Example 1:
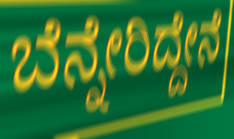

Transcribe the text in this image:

ಬೆನ್ನೇರಿದ್ದೇನೆ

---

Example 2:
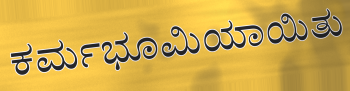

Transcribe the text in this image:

ಕರ್ಮಭೂಮಿಯಾಯಿತು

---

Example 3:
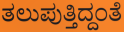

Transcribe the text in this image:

ತಲುಪುತ್ತಿದ್ದಂತೆ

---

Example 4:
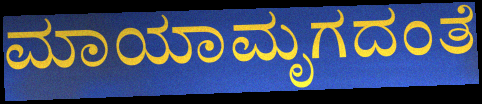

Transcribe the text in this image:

ಮಾಯಾಮೃಗದಂತೆ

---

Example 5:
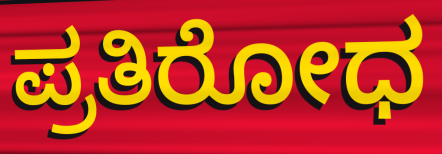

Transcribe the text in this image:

ಪ್ರತಿರೋಧ